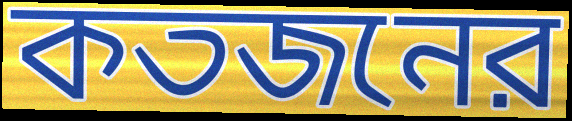
কতজনের